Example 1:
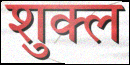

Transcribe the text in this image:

शुक्‍ल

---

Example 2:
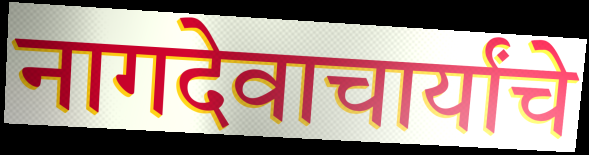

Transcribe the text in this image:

नागदेवाचार्यांचे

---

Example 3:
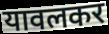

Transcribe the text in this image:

यावलकर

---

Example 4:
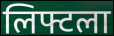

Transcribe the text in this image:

लिफ्टला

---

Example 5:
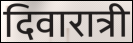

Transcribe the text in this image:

दिवारात्री